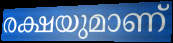
രക്ഷയുമാണ്